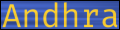
Andhra